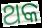
ଥକ